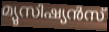
മ്യുസിഷ്യൻസ്